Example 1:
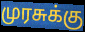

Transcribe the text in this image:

முரசுக்கு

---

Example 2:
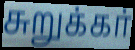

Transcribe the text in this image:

சுறுக்கர்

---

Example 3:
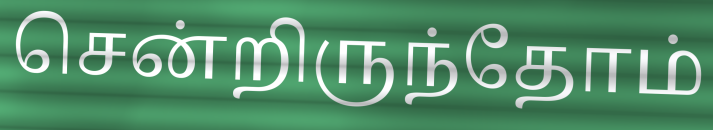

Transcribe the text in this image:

சென்றிருந்தோம்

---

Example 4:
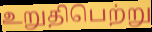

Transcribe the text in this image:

உறுதிபெற்று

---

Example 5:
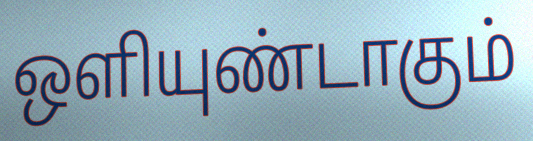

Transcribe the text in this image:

ஒளியுண்டாகும்